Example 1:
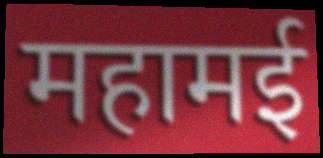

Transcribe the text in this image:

महामई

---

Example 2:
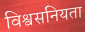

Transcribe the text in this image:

विश्वसनियता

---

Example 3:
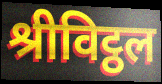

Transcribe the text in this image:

श्रीविट्ठल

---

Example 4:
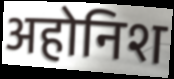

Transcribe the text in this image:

अहोनिश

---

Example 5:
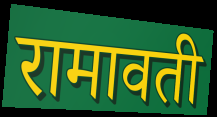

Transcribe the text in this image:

रामावती